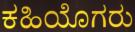
ಕಹಿಯೊಗರು